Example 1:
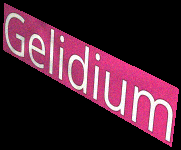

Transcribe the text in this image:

Gelidium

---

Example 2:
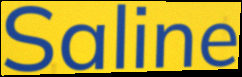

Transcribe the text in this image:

Saline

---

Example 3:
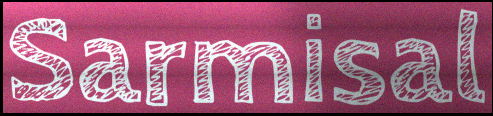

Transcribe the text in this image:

Sarmisal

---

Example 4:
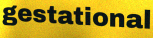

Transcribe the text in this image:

gestational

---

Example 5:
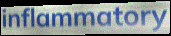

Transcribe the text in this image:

inflammatory